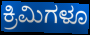
ಕ್ರಿಮಿಗಳೂ